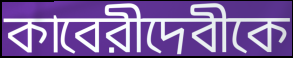
কাবেরীদেবীকে